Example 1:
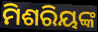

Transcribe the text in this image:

ମିଶରିୟଙ୍କ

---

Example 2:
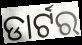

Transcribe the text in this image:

ଡାର୍ଟର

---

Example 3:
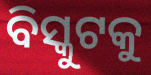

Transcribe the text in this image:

ବିସ୍କୁଟକୁ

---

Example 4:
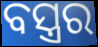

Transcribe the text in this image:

ବସ୍ତ୍ରର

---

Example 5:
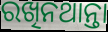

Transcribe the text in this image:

ରଖିନଥାନ୍ତା